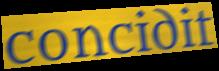
concidit